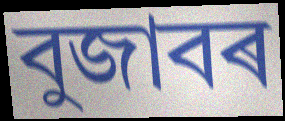
বুজাবৰ